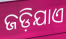
ଜଡ଼ିଯାଏ